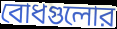
বোধগুলোর